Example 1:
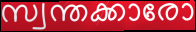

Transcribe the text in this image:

സ്വന്തക്കാരോ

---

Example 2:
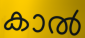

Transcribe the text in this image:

കാൽ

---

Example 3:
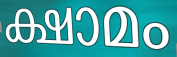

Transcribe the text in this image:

ക്ഷാമം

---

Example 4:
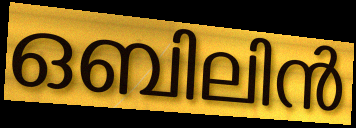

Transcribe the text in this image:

ഒബിലിൻ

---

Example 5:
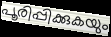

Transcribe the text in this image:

പൂരിപ്പിക്കുകയും